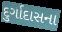
દુર્ગાદાસના